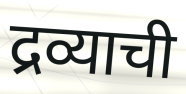
द्रव्याची